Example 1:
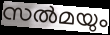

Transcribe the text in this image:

സൽമയും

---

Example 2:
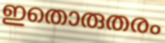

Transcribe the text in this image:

ഇതൊരുതരം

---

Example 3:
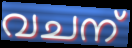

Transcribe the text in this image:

വചന്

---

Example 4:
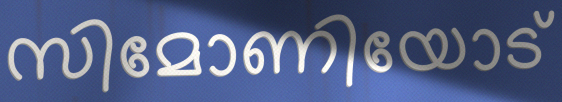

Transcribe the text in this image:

സിമോണിയോട്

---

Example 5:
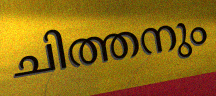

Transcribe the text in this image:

ചിത്തനും